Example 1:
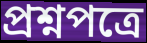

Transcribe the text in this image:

প্রশ্নপত্রে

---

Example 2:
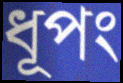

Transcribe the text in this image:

ধূপং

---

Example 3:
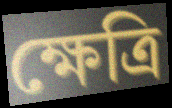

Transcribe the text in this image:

ক্ষেত্রি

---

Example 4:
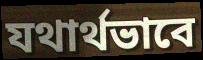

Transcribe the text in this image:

যথার্থভাবে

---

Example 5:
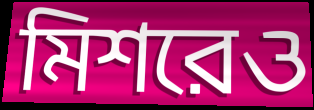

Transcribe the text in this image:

মিশরেও